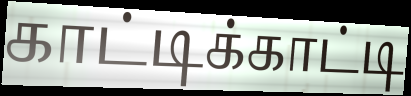
காட்டிக்காட்டி